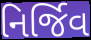
નિર્જિવ